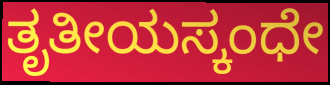
ತೃತೀಯಸ್ಕಂಧೇ